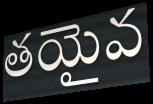
తయైవ